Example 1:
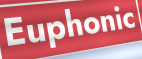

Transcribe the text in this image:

Euphonic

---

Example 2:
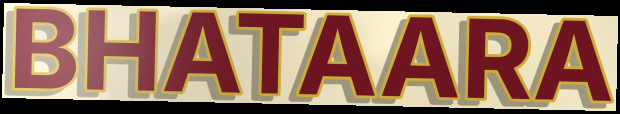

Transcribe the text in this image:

BHATAARA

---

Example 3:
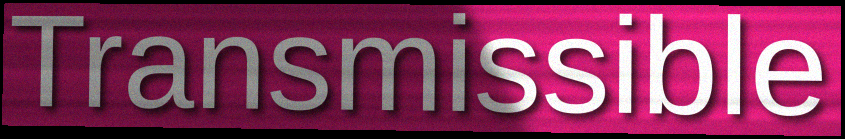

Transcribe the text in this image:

Transmissible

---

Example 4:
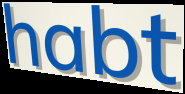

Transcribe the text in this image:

habt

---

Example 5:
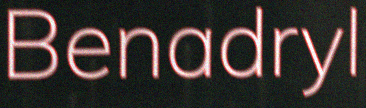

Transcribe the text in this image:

Benadryl